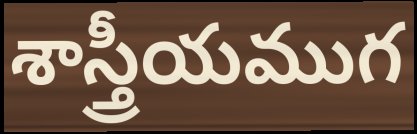
శాస్త్రీయముగ